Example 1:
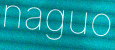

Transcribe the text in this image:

naguo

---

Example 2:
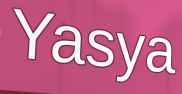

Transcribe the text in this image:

Yasya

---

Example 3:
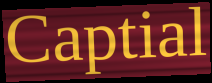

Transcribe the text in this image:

Captial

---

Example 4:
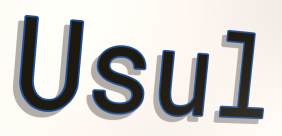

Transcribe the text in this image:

Usul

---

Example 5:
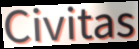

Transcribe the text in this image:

Civitas